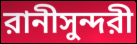
রানীসুন্দরী